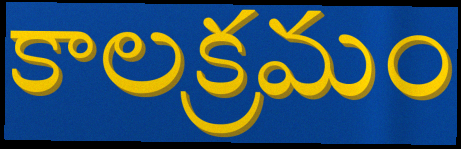
కాలక్రమం